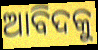
ଆବିଦକୁ